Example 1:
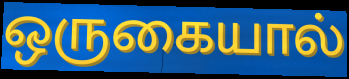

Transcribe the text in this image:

ஒருகையால்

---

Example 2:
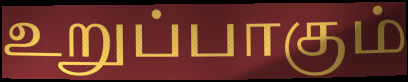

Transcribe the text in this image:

உறுப்பாகும்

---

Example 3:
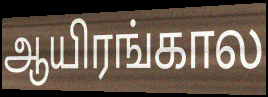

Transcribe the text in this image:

ஆயிரங்கால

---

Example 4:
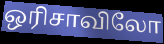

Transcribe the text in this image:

ஒரிசாவிலோ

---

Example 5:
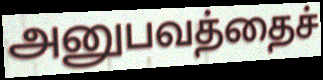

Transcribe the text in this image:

அனுபவத்தைச்